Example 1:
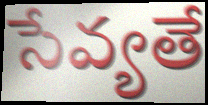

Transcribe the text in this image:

సేవ్యతే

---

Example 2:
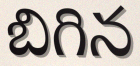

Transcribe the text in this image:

బిగిన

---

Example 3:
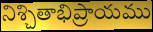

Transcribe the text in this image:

నిశ్చితాభిప్రాయము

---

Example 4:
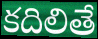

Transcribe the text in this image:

కదిలితే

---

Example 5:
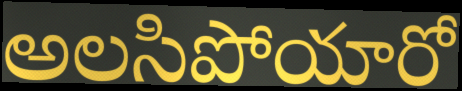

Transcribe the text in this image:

అలసిపోయారో